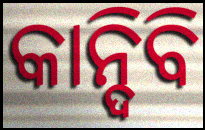
କାନ୍ଦିବି